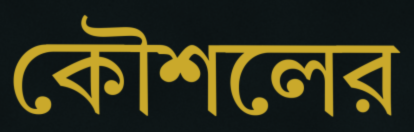
কৌশলের